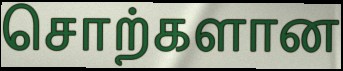
சொற்களான